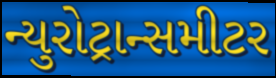
ન્યુરોટ્રાન્સમીટર